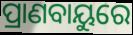
ପ୍ରାଣବାୟୁରେ